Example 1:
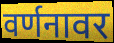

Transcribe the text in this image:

वर्णनावर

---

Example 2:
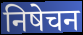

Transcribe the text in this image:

निषेचन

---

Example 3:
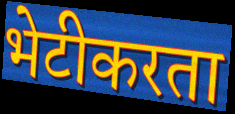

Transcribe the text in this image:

भेटीकरता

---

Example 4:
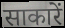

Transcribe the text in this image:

साकारें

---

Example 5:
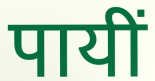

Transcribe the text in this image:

पायीं